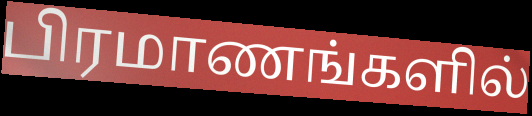
பிரமாணங்களில்